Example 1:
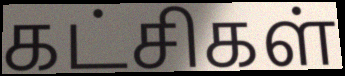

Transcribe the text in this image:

கட்சிகள்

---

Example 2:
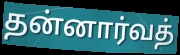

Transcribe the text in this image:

தன்னார்வத்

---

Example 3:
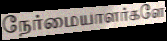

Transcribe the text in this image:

நேர்மையாளர்களே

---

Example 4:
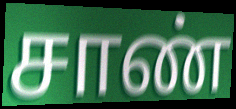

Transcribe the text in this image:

சாண்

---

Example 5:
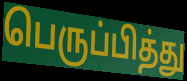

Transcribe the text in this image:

பெருப்பித்து